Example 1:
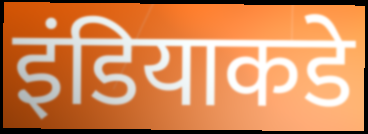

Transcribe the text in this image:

इंडियाकडे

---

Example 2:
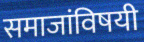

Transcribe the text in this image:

समाजांविषयी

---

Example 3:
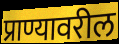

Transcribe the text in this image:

प्राण्यावरील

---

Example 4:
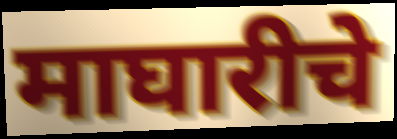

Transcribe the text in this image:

माघारीचे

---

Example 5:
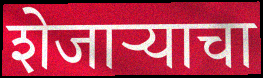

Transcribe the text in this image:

शेजार्‍याचा